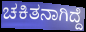
ಚಕಿತನಾಗಿದ್ದೆ